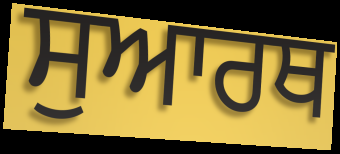
ਸੁਆਰਥ